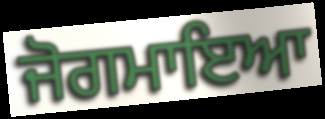
ਜੋਗਮਾਇਆ